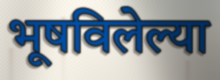
भूषविलेल्या